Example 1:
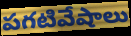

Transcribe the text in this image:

పగటివేషాలు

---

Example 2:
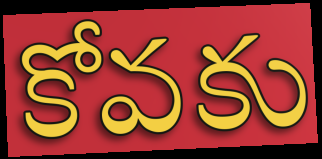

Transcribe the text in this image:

కోవకు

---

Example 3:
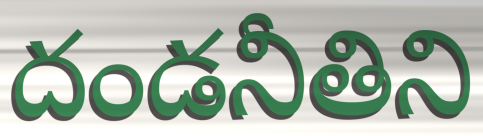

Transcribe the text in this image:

దండనీతిని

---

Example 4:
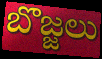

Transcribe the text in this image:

బొజ్జలు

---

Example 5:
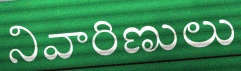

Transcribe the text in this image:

నివారిణులు